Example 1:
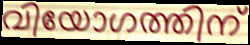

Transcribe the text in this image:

വിയോഗത്തിന്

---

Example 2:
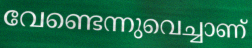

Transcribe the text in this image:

വേണ്ടെന്നുവെച്ചാണ്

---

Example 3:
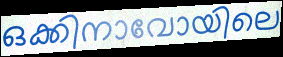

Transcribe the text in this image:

ഒക്കിനാവോയിലെ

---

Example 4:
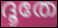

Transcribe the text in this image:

ദൂതേ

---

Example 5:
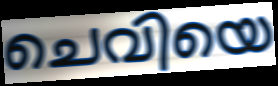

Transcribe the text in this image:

ചെവിയെ